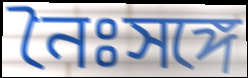
নৈঃসঙ্গে